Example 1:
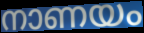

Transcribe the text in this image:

നാണയം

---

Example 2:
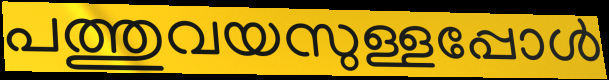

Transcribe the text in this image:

പത്തുവയസുള്ളപ്പോൾ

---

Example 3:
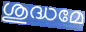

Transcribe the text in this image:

ശുദ്ധമേ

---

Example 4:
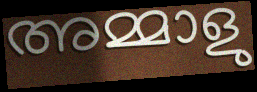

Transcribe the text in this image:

അമ്മാളു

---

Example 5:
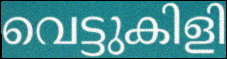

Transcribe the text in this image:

വെട്ടുകിളി